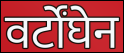
वर्टोंघेन